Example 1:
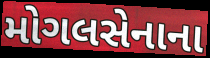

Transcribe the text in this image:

મોગલસેનાના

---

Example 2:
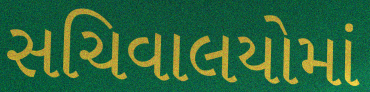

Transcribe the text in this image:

સચિવાલયોમાં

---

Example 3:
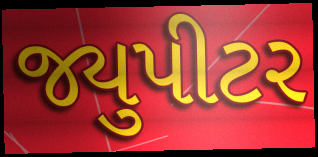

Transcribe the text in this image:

જ્યુપીટર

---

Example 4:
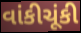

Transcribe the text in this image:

વાંકીચૂંકી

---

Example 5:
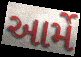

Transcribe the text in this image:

આર્મે